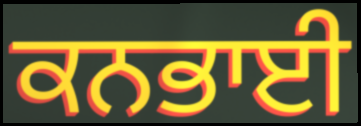
ਕਨਭਾਈ